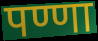
पण्णा